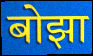
बोझा